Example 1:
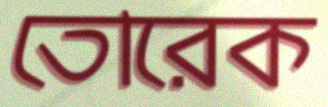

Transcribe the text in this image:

তোরেক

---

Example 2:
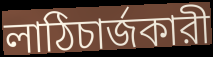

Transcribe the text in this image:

লাঠিচার্জকারী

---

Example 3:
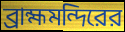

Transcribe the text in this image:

ব্রাহ্মমন্দিরের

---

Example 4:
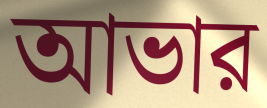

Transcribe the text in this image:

আভার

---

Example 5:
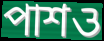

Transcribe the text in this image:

পাশও